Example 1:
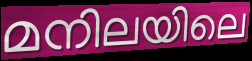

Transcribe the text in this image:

മനിലയിലെ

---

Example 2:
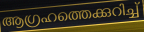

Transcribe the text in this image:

ആഗ്രഹത്തെക്കുറിച്ച്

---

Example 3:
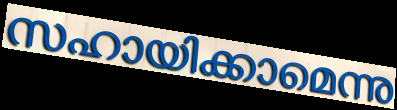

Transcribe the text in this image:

സഹായിക്കാമെന്നു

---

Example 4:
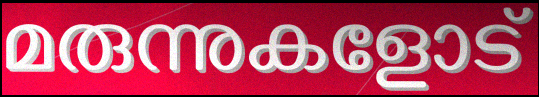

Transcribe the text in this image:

മരുന്നുകളോട്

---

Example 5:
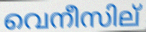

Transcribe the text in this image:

വെനീസില്